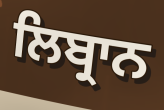
ਲਿਬ੍ਰਾਨ